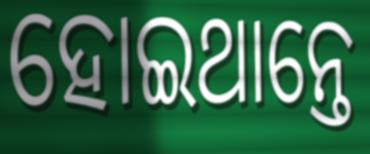
ହୋଇଥାନ୍ତେ